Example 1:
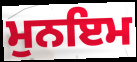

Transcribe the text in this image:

ਮੁਨਇਮ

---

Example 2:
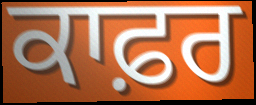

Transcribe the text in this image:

ਕਾਫ਼ਰ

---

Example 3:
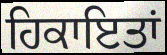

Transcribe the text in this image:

ਹਿਕਾਇਤਾਂ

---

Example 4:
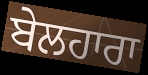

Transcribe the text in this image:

ਬੇਲਹਾਰਾ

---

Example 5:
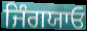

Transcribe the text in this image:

ਜਿੰਗਯਾਓ